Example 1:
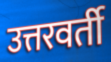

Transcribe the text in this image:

उत्तरवर्ती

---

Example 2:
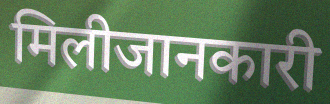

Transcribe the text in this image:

मिलीजानकारी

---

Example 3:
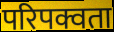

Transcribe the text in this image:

परिपक्वता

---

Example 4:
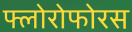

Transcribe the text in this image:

फ्लोरोफोरस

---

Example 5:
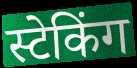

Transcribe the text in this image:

स्टेकिंग